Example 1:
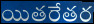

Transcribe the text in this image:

యితరేతర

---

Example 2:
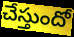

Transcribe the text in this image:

చేస్తుందో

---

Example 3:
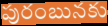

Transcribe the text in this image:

పురంబునకు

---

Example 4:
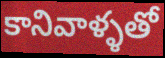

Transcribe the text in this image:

కానివాళ్ళతో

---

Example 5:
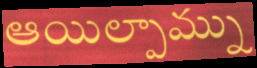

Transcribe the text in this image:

ఆయిల్పామ్ను